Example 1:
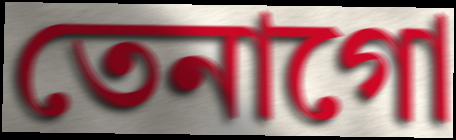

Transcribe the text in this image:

তেনাগো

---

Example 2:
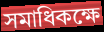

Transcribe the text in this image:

সমাধিকক্ষে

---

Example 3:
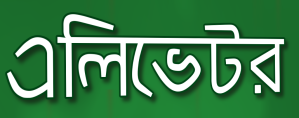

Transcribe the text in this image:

এলিভেটর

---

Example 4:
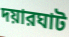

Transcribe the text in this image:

দয়ারঘাট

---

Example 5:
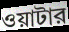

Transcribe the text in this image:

ওয়াটার